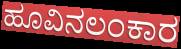
ಹೂವಿನಲಂಕಾರ